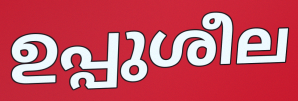
ഉപ്പുശീല